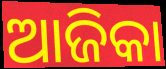
ଆଜିକା